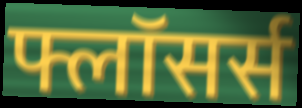
फ्लॉसर्स